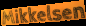
Mikkelsen